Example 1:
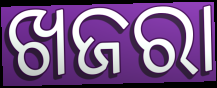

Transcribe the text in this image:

ଖଜରା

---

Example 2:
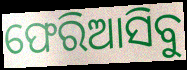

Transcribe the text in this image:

ଫେରିଆସିବୁ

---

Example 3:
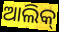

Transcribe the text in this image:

ଆଲିକ୍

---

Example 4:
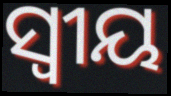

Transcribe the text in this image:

ସ୍ବୀୟ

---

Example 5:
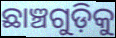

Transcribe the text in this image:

ଛାଞ୍ଚଗୁଡ଼ିକୁ